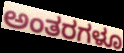
ಅಂತರಗಳೂ